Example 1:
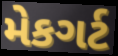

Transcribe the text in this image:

મેકગર્ટ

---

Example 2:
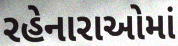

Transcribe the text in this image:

રહેનારાઓમાં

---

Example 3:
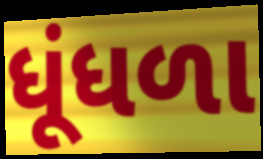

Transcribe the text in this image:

ધૂંધળા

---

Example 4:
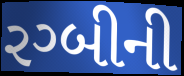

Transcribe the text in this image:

રગ્બીની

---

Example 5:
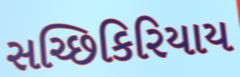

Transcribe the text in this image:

સચ્છિકિરિયાય